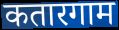
कतारगाम